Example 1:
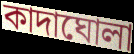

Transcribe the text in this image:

কাদাঘোলা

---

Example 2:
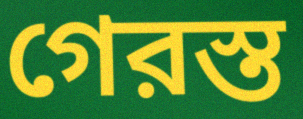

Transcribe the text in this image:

গেরস্ত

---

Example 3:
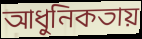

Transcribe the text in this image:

আধুনিকতায়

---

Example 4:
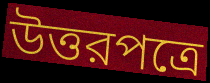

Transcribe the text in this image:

উত্তরপত্রে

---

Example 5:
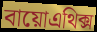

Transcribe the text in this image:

বায়োএথিক্স